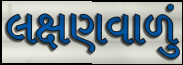
લક્ષણવાળું